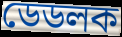
ডেডলক